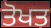
ਤੋਖਤ